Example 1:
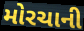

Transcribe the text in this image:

મોરચાની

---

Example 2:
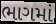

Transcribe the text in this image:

ભાગમાં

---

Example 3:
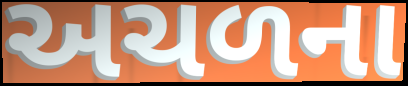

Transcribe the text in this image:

અચળના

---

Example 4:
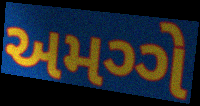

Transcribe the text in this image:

અમગ્ગે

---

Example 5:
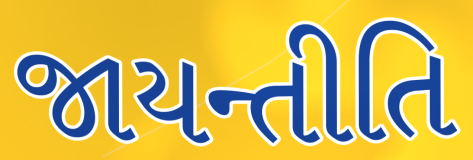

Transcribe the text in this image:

જાયન્તીતિ